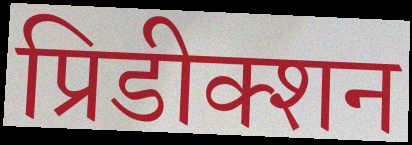
प्रिडीक्शन